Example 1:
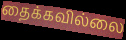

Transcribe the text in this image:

தைக்கவில்லை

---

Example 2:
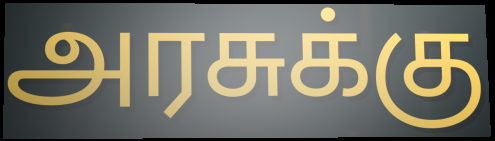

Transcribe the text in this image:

அரசுக்கு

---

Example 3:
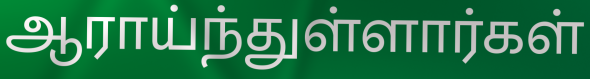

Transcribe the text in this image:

ஆராய்ந்துள்ளார்கள்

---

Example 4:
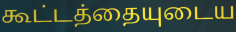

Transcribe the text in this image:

கூட்டத்தையுடைய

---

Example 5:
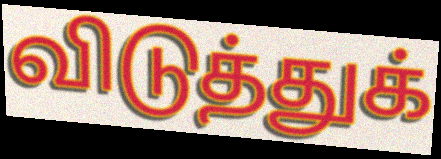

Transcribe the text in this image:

விடுத்துக்